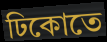
ঢিকোতে